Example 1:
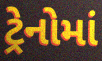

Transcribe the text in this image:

ટ્રેનોમાં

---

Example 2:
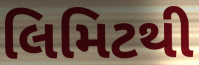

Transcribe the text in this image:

લિમિટથી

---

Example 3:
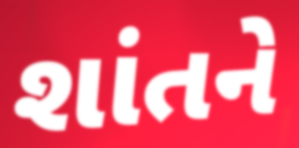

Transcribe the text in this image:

શાંતને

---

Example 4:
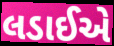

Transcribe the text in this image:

લડાઈએ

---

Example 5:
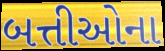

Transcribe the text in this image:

બત્તીઓના